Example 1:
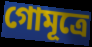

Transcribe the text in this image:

গোমূত্রে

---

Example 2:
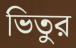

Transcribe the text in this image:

ভিতুর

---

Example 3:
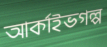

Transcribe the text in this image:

আর্কাইভগল্প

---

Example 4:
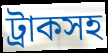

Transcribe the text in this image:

ট্রাকসহ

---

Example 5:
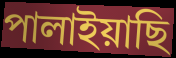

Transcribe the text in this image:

পালাইয়াছি